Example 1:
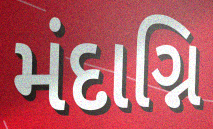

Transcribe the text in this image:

મંદાગ્નિ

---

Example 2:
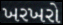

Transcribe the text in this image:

ખરખરો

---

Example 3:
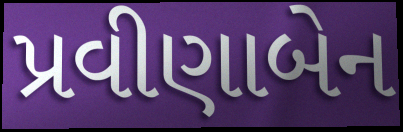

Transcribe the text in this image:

પ્રવીણાબેન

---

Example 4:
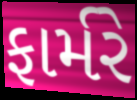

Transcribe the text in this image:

ફાર્મરે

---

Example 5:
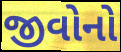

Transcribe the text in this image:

જીવોનો